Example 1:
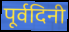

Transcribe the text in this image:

पूर्वदिनी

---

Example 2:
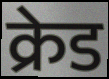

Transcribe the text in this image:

क्रेड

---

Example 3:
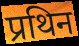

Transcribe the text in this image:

प्रथिन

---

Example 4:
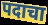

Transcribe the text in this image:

पदाचा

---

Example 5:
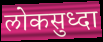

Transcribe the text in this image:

लोकसुध्दा